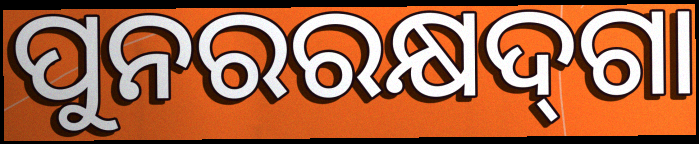
ପୁନରରକ୍ଷଦ୍‌ଗା